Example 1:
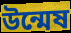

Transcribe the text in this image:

উন্মেষ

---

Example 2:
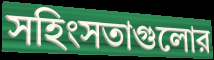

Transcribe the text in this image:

সহিংসতাগুলোর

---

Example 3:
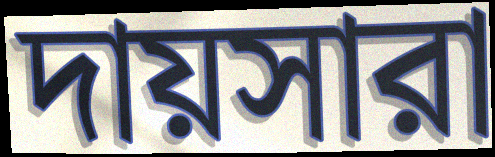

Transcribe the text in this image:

দায়সারা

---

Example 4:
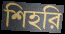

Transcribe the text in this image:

শিহরি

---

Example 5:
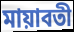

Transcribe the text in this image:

মায়াবতী